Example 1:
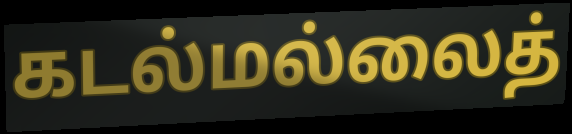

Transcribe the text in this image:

கடல்மல்லைத்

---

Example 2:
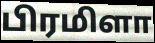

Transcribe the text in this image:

பிரமிளா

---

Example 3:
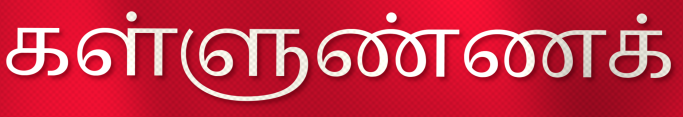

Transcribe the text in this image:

கள்ளுண்ணக்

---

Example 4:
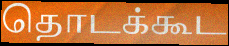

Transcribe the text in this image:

தொடக்கூட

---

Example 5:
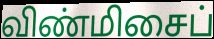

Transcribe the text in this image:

விண்மிசைப்